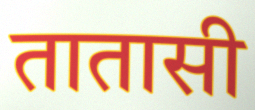
तातासी